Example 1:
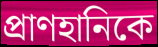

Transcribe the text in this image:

প্রাণহানিকে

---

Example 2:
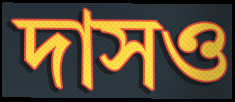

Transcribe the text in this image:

দাসও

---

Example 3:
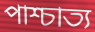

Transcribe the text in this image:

পাশ্চাত্য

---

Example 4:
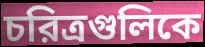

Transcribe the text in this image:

চরিত্রগুলিকে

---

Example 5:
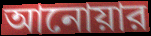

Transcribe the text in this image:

আনোয়ার